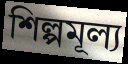
শিল্পমূল্য